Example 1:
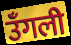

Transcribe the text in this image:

उँगली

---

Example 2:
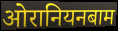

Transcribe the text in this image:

ओरानियनबाम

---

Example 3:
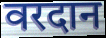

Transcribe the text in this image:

वरदान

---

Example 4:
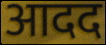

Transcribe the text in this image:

आदद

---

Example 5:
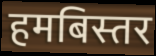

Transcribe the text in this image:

हमबिस्तर